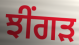
ਝੀਂਗੜ